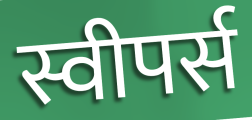
स्वीपर्स